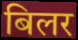
बिलर